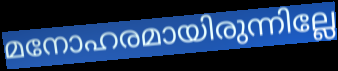
മനോഹരമായിരുന്നില്ലേ